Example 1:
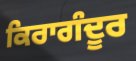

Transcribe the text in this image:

ਕਿਰਾਗੰਦੂਰ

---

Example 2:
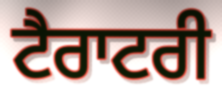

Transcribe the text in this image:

ਟੈਰਾਟਰੀ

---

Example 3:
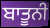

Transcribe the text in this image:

ਬਾਤੂਨੀ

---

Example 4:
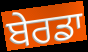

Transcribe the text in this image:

ਬੇਰਡਾ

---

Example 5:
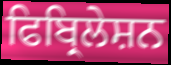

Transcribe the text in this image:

ਫਿਬ੍ਰਿਲੇਸ਼ਨ